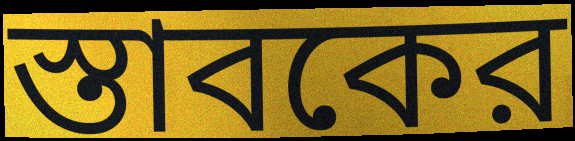
স্তাবকের